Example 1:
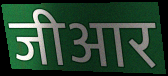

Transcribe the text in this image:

जीआर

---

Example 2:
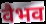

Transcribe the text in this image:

वैभव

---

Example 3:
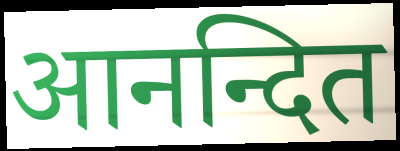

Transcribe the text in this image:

आनन्दित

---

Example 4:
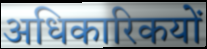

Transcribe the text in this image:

अधिकारिकयों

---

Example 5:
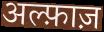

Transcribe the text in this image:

अल्फ़ाज़